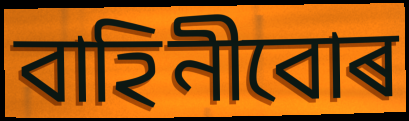
বাহিনীবোৰ